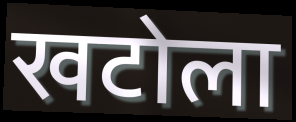
खटोला